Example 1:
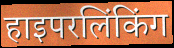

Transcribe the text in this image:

हाइपरलिंकिंग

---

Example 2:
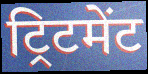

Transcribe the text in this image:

ट्रिटमेंट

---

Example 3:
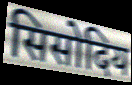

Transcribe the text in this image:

सिसोदिय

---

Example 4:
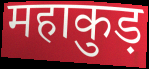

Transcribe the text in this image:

महाकुड़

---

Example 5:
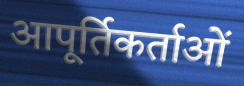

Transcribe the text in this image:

आपूर्तिकर्ताओं